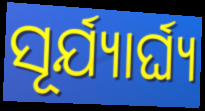
ସୂର୍ଯ୍ୟାର୍ଘ୍ୟ